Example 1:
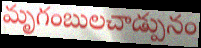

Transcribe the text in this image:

మృగంబులచాడ్పునం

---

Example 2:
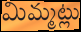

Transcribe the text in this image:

మిమ్మట్లు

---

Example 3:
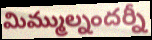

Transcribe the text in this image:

మిమ్ముల్నందర్నీ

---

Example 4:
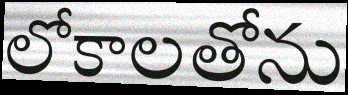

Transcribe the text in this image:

లోకాలతోను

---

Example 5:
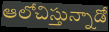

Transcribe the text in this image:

ఆలోచిస్తున్నాడో